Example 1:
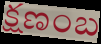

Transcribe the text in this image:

క్షణంబ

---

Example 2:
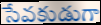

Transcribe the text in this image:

సేవకుడుగా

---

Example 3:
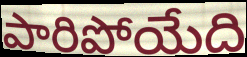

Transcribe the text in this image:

పారిపోయేది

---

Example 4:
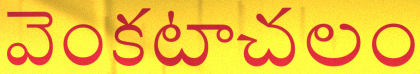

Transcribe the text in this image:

వెంకటాచలం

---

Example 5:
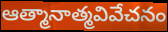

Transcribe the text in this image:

ఆత్మానాత్మవివేచనం